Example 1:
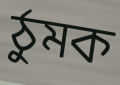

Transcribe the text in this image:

ঠুমক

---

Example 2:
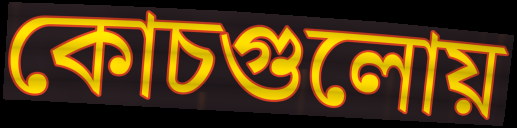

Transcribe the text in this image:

কোচগুলোয়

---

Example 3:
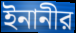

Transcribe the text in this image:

ইনানীর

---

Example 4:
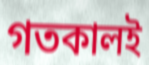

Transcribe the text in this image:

গতকালই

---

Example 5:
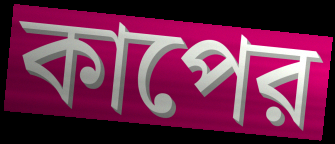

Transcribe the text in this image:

কাপের